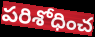
పరిశోధించ